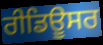
ਰੀਡਿਊਸਰ